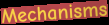
Mechanisms